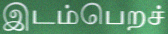
இடம்பெறச்